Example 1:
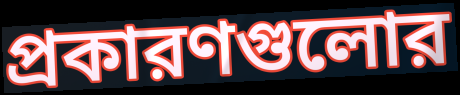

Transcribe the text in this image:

প্রকারণগুলোর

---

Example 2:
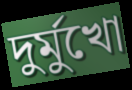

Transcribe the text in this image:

দুর্মুখো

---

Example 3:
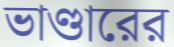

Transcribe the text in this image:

ভাণ্ডারের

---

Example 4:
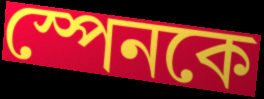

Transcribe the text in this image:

স্পেনকে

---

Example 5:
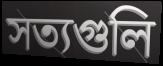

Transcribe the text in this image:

সত্যগুলি